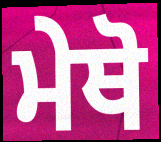
ਮੇਥੋ